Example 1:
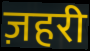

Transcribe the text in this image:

ज़हरी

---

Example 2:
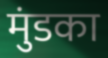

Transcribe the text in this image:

मुंडका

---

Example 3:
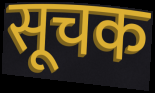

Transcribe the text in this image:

सूचक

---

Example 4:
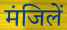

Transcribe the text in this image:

मंजिलें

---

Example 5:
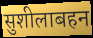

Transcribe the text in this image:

सुशीलाबहन